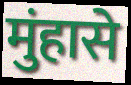
मुंहासे